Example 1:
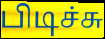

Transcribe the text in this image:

பிடிச்சு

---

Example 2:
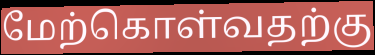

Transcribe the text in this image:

மேற்கொள்வதற்கு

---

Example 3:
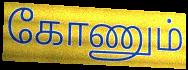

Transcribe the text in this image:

கோணும்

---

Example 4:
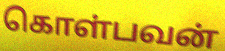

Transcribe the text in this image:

கொள்பவன்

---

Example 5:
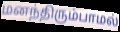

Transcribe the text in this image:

மனந்திரும்பாமல்